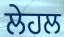
ਲੇਹਲ